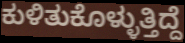
ಕುಳಿತುಕೊಳ್ಳುತ್ತಿದ್ದೆ